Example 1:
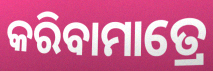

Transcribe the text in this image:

କରିବାମାତ୍ରେ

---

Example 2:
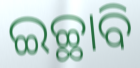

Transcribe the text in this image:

ଇଚ୍ଛାବି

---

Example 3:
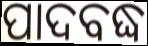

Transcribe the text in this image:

ପାଦବଦ୍ଧ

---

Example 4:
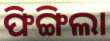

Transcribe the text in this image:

ଫିଙ୍ଗିଲା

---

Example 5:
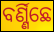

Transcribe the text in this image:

ବର୍ଣ୍ଣିଛେ